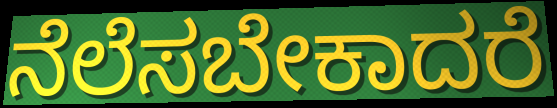
ನೆಲೆಸಬೇಕಾದರೆ